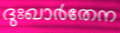
ദുഃഖാർതേന